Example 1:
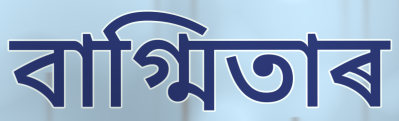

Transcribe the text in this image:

বাগ্মিতাৰ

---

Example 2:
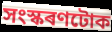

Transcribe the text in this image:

সংস্কৰণটোক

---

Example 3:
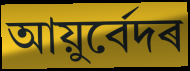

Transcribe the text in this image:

আয়ুৰ্বেদৰ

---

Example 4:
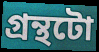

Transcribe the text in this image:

গ্ৰন্থটো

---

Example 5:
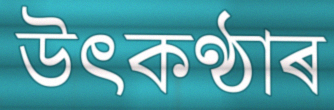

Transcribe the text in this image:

উৎকণ্ঠাৰ